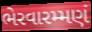
ભેરવારમ્મણં